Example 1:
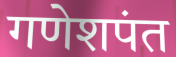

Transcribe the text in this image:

गणेशपंत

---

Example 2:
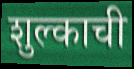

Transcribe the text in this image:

शुल्काची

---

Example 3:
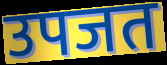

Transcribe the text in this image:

उपजत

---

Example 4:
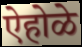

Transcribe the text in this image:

ऐहोळे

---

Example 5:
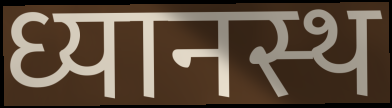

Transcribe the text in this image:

ध्यानस्थ